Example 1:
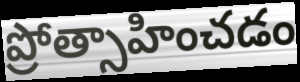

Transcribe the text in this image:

ప్రోత్సాహించడం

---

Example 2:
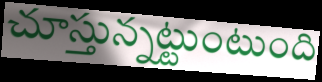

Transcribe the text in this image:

చూస్తున్నట్టుంటుంది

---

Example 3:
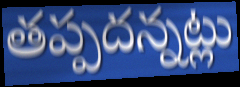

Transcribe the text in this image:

తప్పదన్నట్లు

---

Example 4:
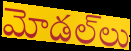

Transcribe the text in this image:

మోడల్‌లు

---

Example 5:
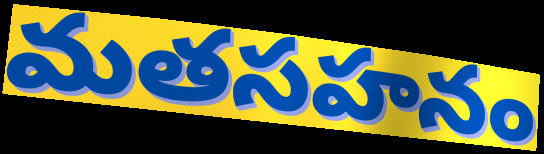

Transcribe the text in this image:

మతసహనం